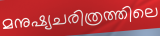
മനുഷ്യചരിത്രത്തിലെ